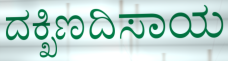
ದಕ್ಖಿಣದಿಸಾಯ